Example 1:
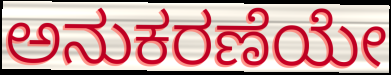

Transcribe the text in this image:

ಅನುಕರಣೆಯೇ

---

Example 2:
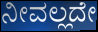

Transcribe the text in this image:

ನೀವಲ್ಲದೇ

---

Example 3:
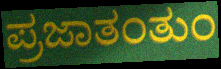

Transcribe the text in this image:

ಪ್ರಜಾತಂತುಂ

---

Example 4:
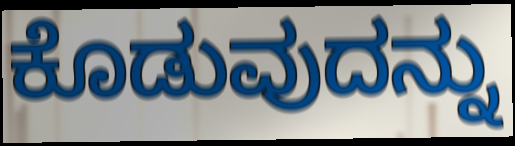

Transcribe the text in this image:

ಕೊಡುವುದನ್ನು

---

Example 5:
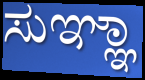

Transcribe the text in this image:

ಸುಞ್ಞಾ